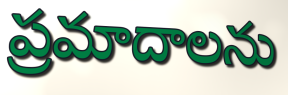
ప్రమాదాలను